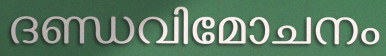
ദണ്ഡവിമോചനം